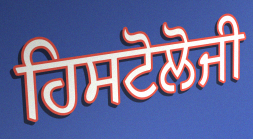
ਹਿਸਟੋਲੋਜੀ